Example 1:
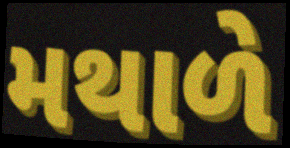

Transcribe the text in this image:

મથાળે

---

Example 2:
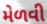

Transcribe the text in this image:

મેળવી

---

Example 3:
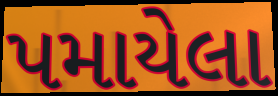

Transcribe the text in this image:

પમાયેલા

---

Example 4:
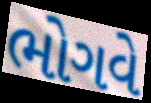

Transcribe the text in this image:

ભોગવે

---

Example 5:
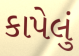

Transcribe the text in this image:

કાપેલું